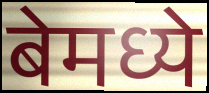
बेमध्ये